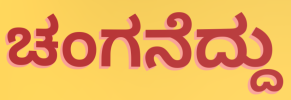
ಚಂಗನೆದ್ದು